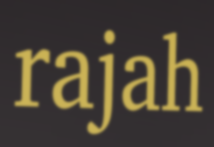
rajah